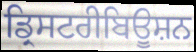
ਡ੍ਰਿਸਟਰੀਬਿਊਸ਼ਨ